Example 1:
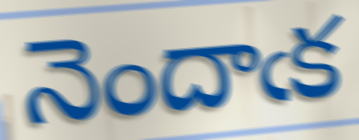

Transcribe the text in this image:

నెందాఁక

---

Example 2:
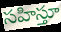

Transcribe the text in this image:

సహిస్తూ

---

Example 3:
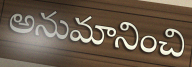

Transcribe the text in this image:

అనుమానించి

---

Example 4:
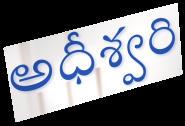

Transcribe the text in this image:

అధీశ్వరి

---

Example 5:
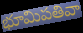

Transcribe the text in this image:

భూమిపతివా